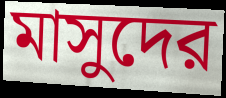
মাসুদের